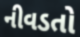
નીવડતો